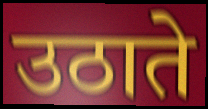
उठाते